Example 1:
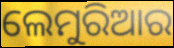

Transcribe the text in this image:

ଲେମୁରିଆର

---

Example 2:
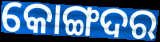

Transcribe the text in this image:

କୋଙ୍ଗଦର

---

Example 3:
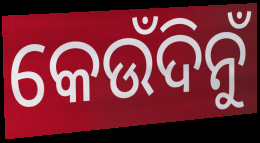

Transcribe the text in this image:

କେଉଁଦିନୁଁ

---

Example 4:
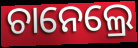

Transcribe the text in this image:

ଚାନେଲ୍ରେ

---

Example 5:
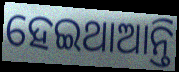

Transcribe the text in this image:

ହେଇଥାଆନ୍ତି